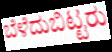
ಬೆಳೆದುಬಿಟ್ಟರು